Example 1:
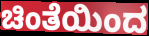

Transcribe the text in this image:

ಚಿಂತೆಯಿಂದ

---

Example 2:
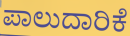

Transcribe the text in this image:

ಪಾಲುದಾರಿಕೆ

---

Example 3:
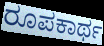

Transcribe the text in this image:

ರೂಪಕಾರ್ಥ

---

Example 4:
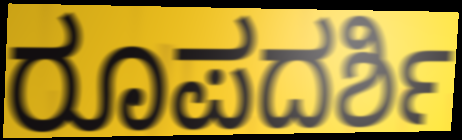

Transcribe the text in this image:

ರೂಪದರ್ಶಿ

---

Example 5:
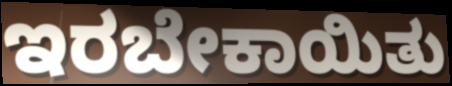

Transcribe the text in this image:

ಇರಬೇಕಾಯಿತು